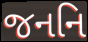
જનનિ